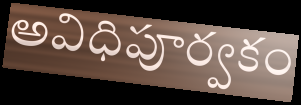
అవిధిపూర్వకం